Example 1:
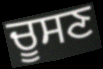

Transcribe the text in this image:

ਚੂਸਣ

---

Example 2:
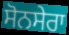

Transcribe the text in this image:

ਸੋਨਸੇਰਾ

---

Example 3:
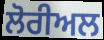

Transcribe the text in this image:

ਲੋਰੀਅਲ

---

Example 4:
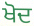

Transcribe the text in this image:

ਖੋਦ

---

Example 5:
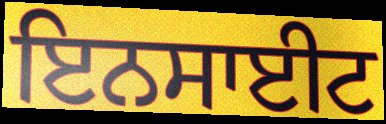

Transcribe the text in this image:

ਇਨਸਾਈਟ